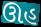
ઊહ